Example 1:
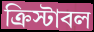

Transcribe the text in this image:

ক্রিস্টাবল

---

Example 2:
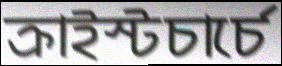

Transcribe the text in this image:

ক্রাইস্টচার্চে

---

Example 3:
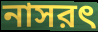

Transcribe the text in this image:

নাসরৎ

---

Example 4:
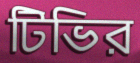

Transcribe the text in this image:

টিভির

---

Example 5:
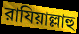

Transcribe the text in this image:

রাযিয়াল্লাহু